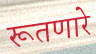
रूतणारे